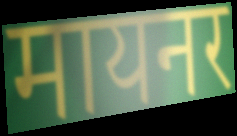
मायनर